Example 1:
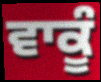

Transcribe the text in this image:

ਵਾਕੂੰ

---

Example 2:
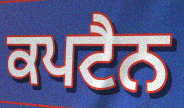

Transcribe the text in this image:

ਕਪਟੈਨ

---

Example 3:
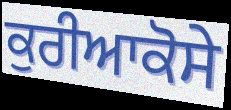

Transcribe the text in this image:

ਕੁਰੀਆਕੋਸੇ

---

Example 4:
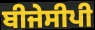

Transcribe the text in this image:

ਬੀਜੇਸੀਪੀ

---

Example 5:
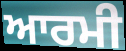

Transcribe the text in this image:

ਆਰਮੀ